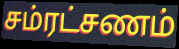
சம்ரட்சணம்